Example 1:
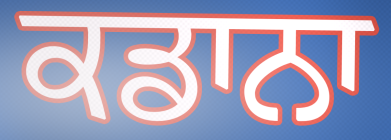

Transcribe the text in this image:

ਕਡਾਨਾ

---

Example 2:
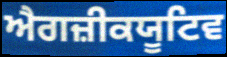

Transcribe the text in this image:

ਐਗਜ਼ੀਕਯੂਟਿਵ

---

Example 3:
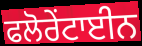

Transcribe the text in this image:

ਫਲੋਰੇਂਟਾਈਨ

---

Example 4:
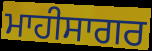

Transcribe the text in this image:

ਮਾਹੀਸਾਗਰ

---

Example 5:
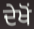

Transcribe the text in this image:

ਦੇਖੋਂ